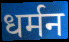
धर्मन